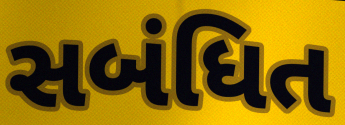
સબંધિત